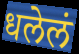
धलेलं